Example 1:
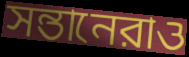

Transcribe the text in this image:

সন্তানেরাও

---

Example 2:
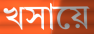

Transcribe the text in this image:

খসায়ে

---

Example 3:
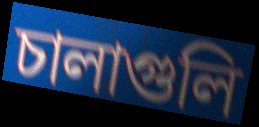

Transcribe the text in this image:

চালাগুলি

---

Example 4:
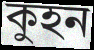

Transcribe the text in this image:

কুহন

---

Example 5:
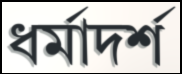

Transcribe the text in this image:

ধর্মাদর্শ